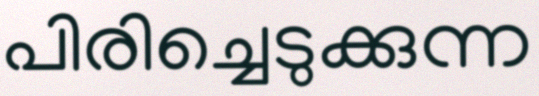
പിരിച്ചെടുക്കുന്ന